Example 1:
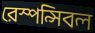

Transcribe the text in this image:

রেস্পন্সিবল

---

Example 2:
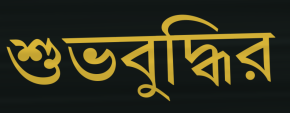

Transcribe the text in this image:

শুভবুদ্ধির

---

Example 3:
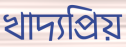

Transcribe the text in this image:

খাদ্যপ্রিয়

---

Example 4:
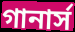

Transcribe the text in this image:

গানার্স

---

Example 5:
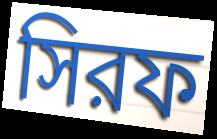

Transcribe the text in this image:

সিরফ